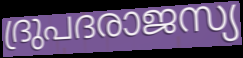
ദ്രുപദരാജസ്യ